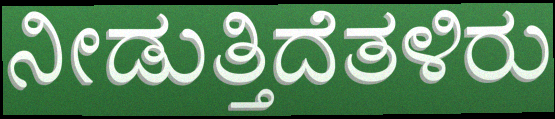
ನೀಡುತ್ತಿದೆತಳಿರು